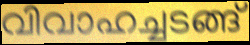
വിവാഹച്ചടങ്ങ്